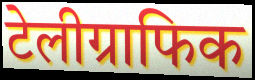
टेलीग्राफिक